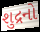
શુદ્રનો